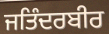
ਜਤਿੰਦਰਬੀਰ